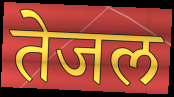
तेजल